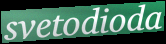
svetodioda